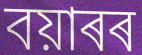
বয়াৰৰ